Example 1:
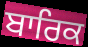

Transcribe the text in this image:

ਬਾਰਿਕ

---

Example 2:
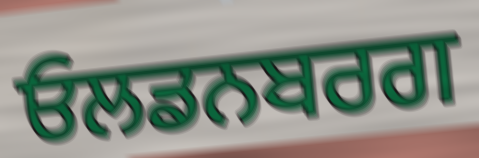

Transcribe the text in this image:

ਓਲਡਨਬਰਗ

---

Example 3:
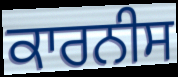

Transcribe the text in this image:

ਕਾਰਨੀਸ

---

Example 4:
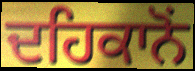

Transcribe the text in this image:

ਦਹਿਕਾਨੋਂ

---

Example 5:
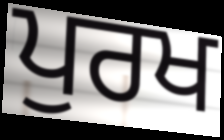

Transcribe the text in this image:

ਪੁਰਖ